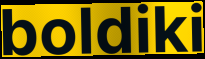
boldiki